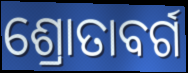
ଶ୍ରୋତାବର୍ଗ